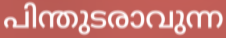
പിന്തുടരാവുന്ന